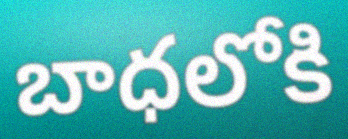
బాధలోకి